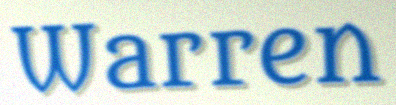
Warren